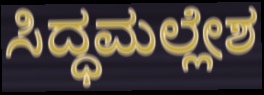
ಸಿದ್ಧಮಲ್ಲೇಶ